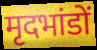
मृदभांडों